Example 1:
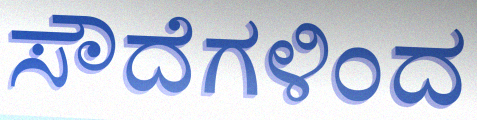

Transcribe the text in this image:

ಸೌದೆಗಳಿಂದ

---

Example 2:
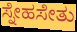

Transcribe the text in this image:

ಸ್ನೇಹಸೇತು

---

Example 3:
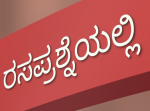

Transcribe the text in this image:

ರಸಪ್ರಶ್ನೆಯಲ್ಲಿ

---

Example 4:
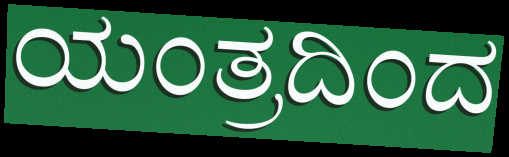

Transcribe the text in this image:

ಯಂತ್ರದಿಂದ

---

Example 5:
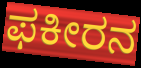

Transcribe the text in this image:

ಫಕೀರನ